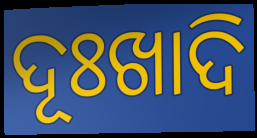
ଦୂଃଖାଦି